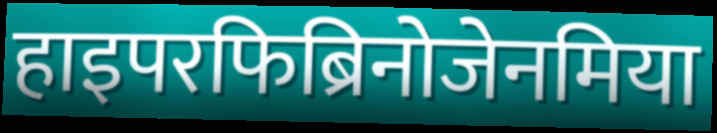
हाइपरफिब्रिनोजेनमिया